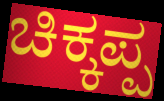
ಚಿಕ್ಕಪ್ಪ